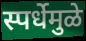
स्पर्धेमुळे